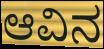
ಆವಿನ